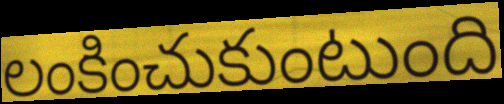
లంకించుకుంటుంది